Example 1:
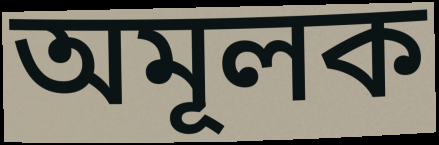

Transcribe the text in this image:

অমূলক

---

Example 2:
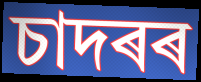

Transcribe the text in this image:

চাদৰৰ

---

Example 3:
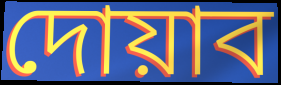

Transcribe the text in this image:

দোয়াব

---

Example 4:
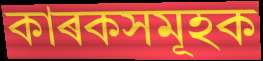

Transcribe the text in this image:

কাৰকসমূহক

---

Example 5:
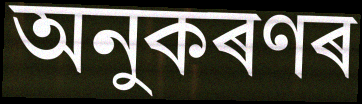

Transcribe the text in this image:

অনুকৰণৰ